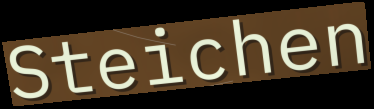
Steichen